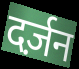
दर्ज़न